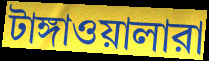
টাঙ্গাওয়ালারা